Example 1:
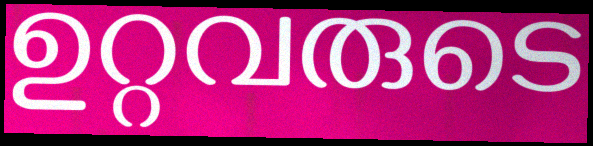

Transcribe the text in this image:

ഉറ്റവരുടെ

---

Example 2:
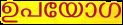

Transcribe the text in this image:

ഉപയോഗ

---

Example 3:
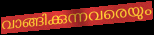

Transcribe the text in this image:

വാങ്ങിക്കുന്നവരെയും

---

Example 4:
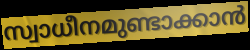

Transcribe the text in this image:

സ്വാധീനമുണ്ടാക്കാൻ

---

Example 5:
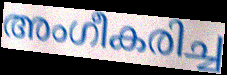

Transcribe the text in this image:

അംഗീകരിച്ച